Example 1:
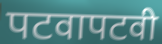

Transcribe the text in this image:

पटवापटवी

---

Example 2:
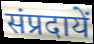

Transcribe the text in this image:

संप्रदायें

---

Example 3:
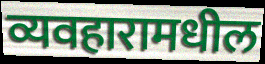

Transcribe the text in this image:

व्यवहारामधील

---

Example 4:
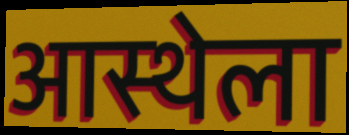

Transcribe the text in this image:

आस्थेला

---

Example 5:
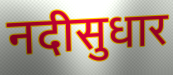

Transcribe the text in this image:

नदीसुधार